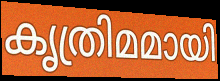
കൃത്രിമമായി